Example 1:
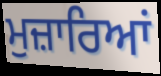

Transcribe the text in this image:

ਮੁਜ਼ਾਰਿਆਂ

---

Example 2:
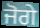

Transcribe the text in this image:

ਜੋਗੇ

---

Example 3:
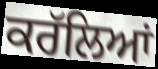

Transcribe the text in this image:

ਕਰੱਲਿਆਂ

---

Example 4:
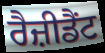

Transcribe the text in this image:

ਰੈਜ਼ੀਡੈਂਟ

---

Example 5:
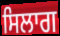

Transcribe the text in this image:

ਸਿਲਾਗ